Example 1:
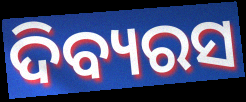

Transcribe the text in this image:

ଦିବ୍ୟରସ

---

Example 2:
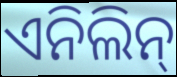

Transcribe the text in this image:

ଏନିଲିନ୍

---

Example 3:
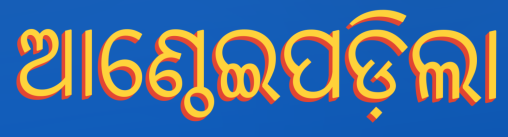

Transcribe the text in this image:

ଆଣ୍ଠେଇପଡ଼ିଲା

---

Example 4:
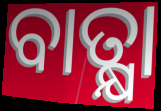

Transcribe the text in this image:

ବାତ୍କ୍ଷା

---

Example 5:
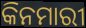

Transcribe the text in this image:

କିନମାରୀ